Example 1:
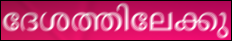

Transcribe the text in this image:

ദേശത്തിലേക്കു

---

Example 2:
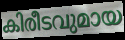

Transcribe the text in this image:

കിരീടവുമായ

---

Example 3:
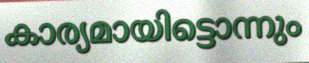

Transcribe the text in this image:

കാര്യമായിട്ടൊന്നും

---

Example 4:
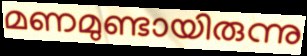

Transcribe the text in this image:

മണമുണ്ടായിരുന്നു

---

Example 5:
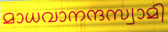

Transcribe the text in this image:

മാധവാനന്ദസ്വാമി